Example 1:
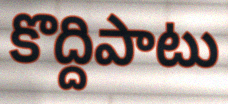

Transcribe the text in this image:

కొద్దిపాటు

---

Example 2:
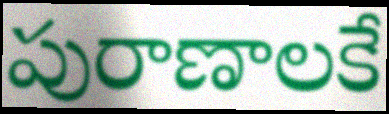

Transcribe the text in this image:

పురాణాలకే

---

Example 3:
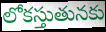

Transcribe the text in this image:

లోకస్తుతునకు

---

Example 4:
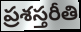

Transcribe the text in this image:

ప్రశస్తరీతి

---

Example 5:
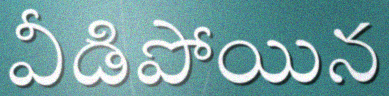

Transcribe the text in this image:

వీడిపోయిన